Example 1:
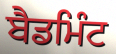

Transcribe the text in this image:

ਬੈਡਮਿੰਟ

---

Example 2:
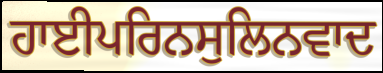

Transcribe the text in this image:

ਹਾਈਪਰਿਨਸੁਲਿਨਵਾਦ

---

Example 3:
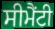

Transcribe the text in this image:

ਸੀਮੈਂਟੀ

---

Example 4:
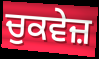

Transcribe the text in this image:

ਚੁਕਵੇਜ਼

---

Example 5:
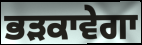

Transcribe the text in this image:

ਭੜਕਾਵੇਗਾ